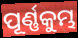
ପୂର୍ଣ୍ଣକୁମ୍ଭ